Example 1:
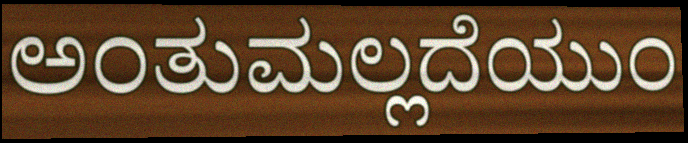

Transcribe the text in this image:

ಅಂತುಮಲ್ಲದೆಯುಂ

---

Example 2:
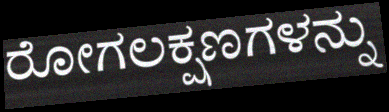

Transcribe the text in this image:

ರೋಗಲಕ್ಷಣಗಳನ್ನು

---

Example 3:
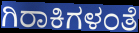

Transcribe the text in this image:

ಗಿರಾಕಿಗಳಂತೆ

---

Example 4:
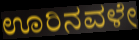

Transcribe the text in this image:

ಊರಿನವಳೇ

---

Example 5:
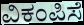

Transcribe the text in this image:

ವಿಕಂಪಿಸೆ